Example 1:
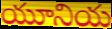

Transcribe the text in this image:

యూనియ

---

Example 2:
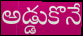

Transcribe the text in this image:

అడ్డుకొనే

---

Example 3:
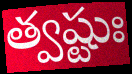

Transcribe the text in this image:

త్వష్టుః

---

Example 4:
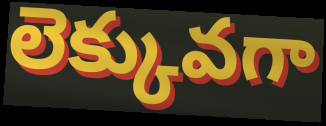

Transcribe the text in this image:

లెక్కువగా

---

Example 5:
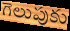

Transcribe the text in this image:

గెలుపుకు